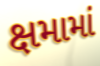
ક્ષમામાં